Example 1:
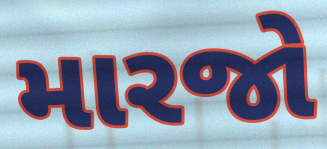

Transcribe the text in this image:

મારજો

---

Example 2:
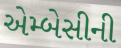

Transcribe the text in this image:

એમ્બેસીની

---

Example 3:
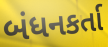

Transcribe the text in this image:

બંધનકર્તા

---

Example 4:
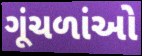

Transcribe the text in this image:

ગૂંચળાંઓ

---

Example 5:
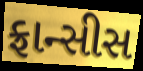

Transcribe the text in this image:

ફ્રાન્સીસ